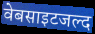
वेबसाइटजल्द